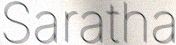
Saratha